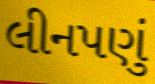
લીનપણું